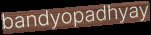
bandyopadhyay